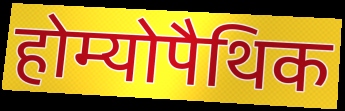
होम्योपैथिक